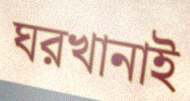
ঘরখানাই